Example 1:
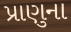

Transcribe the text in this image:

પ્રાણુના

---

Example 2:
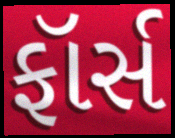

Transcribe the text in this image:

ફૉર્સ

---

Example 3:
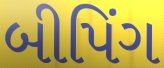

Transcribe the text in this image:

બીપિંગ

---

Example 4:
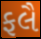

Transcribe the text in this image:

ફલૈ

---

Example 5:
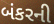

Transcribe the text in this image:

બંકરની